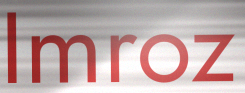
Imroz